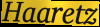
Haaretz